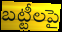
బట్టీలపై